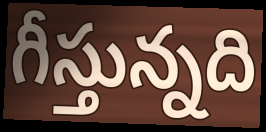
గీస్తున్నది